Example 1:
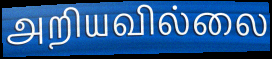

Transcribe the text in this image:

அறியவில்லை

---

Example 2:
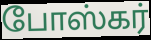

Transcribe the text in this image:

போஸ்கர்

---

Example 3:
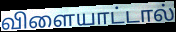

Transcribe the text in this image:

விளையாட்டால்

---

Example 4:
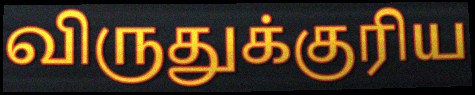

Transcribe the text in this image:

விருதுக்குரிய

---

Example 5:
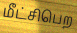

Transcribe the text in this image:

மீட்சிபெற